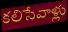
కలిసేవాళ్లు